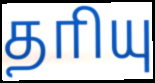
தரியு